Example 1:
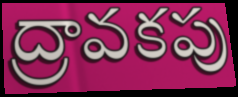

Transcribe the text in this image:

ద్రావకపు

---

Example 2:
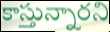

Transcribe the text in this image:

కాస్తున్నారని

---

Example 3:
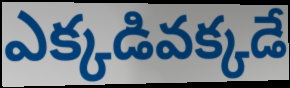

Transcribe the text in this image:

ఎక్కడివక్కడే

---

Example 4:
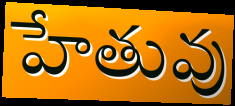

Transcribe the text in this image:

హేతువు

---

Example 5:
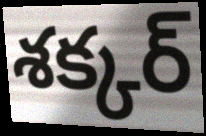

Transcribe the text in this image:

శక్కర్